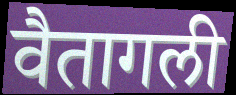
वैतागली